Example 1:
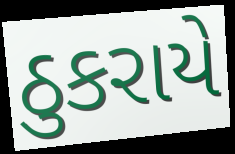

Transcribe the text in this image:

ઠુકરાયે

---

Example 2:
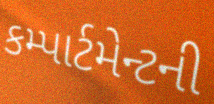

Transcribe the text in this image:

કમ્પાર્ટમેન્ટની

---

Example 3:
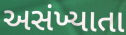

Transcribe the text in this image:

અસંખ્યાતા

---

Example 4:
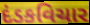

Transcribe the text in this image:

દંડકવિચાર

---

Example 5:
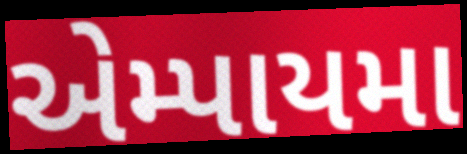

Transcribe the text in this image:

એમ્પાયમા